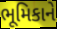
ભૂમિકાને